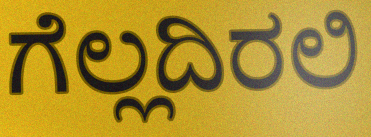
ಗೆಲ್ಲದಿರಲಿ